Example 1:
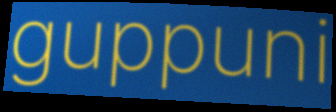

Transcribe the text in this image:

guppuni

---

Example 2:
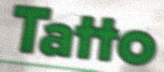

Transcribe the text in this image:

Tatto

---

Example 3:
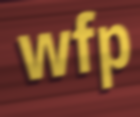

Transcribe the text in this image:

wfp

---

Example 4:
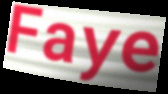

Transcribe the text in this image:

Faye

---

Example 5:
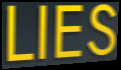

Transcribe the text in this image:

LIES